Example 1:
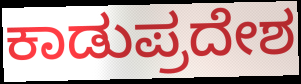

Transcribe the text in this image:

ಕಾಡುಪ್ರದೇಶ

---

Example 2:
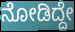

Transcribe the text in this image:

ನೋಡಿದ್ದೇ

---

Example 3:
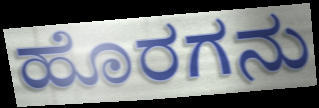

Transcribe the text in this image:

ಹೊರಗನು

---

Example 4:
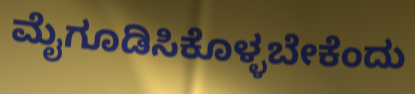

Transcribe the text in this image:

ಮೈಗೂಡಿಸಿಕೊಳ್ಳಬೇಕೆಂದು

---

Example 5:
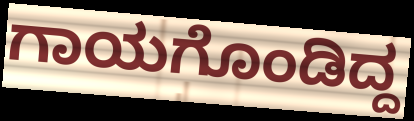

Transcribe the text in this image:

ಗಾಯಗೊಂಡಿದ್ದ